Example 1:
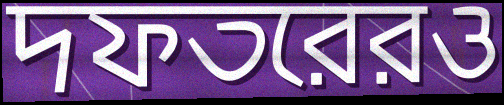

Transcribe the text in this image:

দফতরেরও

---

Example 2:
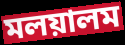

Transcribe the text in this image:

মলয়ালম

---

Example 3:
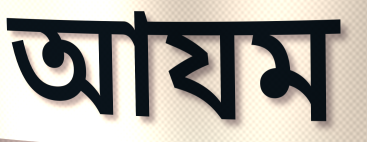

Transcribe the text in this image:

আযম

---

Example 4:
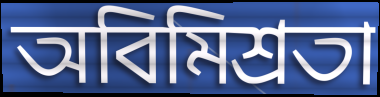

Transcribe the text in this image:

অবিমিশ্রতা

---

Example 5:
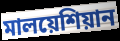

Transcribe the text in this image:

মালয়েশিয়ান